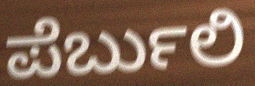
ಪೆರ್ಬುಲಿ